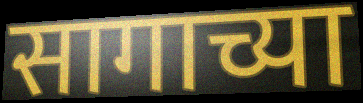
सागाच्या